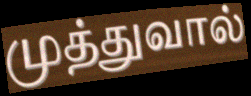
முத்துவால்